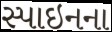
સ્પાઇનના